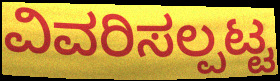
ವಿವರಿಸಲ್ಪಟ್ಟ